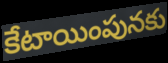
కేటాయింపునకు